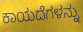
ಕಾಯದೆಗಳನ್ನು